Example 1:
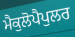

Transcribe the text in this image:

ਮੈਕੁਲੋਪੈਪੁਲਰ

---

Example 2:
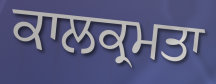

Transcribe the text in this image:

ਕਾਲਕ੍ਰਮਤਾ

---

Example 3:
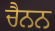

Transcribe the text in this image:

ਚੈਨਨ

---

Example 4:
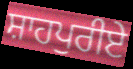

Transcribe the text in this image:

ਸ਼ਾਹਪੁਰੀਏ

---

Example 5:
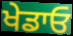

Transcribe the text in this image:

ਖੇਡਾਓ